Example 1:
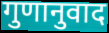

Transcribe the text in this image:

गुणानुवाद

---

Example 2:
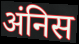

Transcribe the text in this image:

अंनिस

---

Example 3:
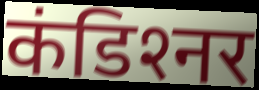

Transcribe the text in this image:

कंडिश्नर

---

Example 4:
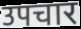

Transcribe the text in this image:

उपचार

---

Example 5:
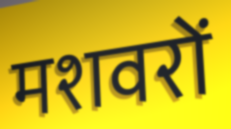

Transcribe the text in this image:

मशवरों